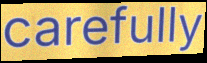
carefully